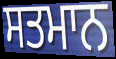
ਸਤਮਾਨ